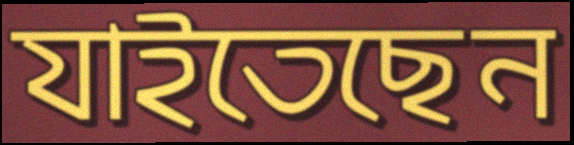
যাইতেছেন